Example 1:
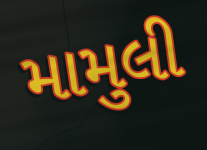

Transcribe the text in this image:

મામુલી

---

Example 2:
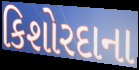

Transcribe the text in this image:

કિશોરદાના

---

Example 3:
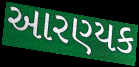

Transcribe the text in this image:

આરણ્યક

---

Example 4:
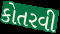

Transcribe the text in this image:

કોતરવી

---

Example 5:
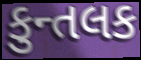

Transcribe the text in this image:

કુન્તલક